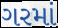
ગરમાં